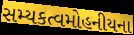
સમ્યકત્વમોહનીયના